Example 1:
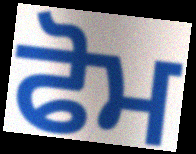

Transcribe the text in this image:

ਫੋਮ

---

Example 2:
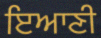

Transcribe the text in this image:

ਇਆਣੀ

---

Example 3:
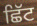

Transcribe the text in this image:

ਛਿੱਟ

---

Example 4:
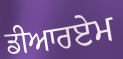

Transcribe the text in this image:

ਡੀਆਰਏਮ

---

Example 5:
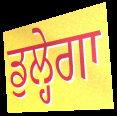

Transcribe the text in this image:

ਡੁਲ੍ਹੇਗਾ